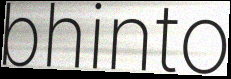
bhinto